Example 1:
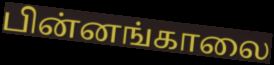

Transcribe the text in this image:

பின்னங்காலை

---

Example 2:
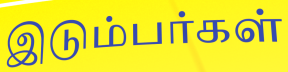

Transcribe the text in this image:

இடும்பர்கள்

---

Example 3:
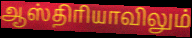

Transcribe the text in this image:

ஆஸ்திரியாவிலும்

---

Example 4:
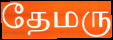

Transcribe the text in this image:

தேமரு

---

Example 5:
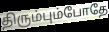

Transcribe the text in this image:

திரும்பும்போதே